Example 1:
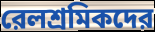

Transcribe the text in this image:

রেলশ্রমিকদের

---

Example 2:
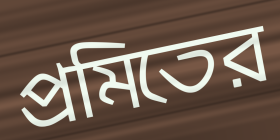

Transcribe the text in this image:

প্রমিতের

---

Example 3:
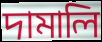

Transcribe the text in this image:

দামালি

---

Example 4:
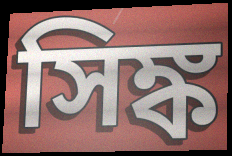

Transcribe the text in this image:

সিঙ্ক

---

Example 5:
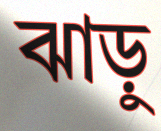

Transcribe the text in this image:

ঝাড়ু